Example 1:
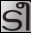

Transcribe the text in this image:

ടീ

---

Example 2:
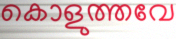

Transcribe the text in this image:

കൊളുത്തവേ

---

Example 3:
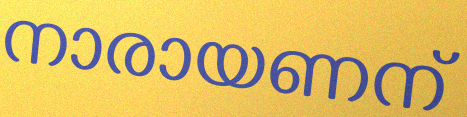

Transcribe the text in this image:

നാരായണന്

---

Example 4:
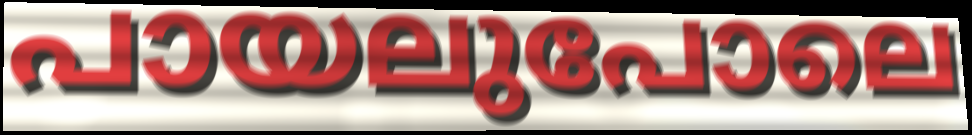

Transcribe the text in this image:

പായലുപോലെ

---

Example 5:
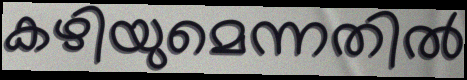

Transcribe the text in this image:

കഴിയുമെന്നതിൽ